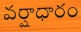
వర్షాధారం